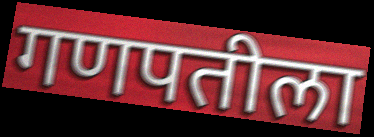
गणपतीला